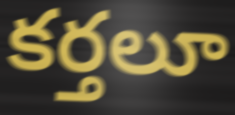
కర్తలూ